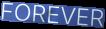
FOREVER